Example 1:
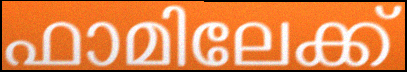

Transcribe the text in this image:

ഫാമിലേക്ക്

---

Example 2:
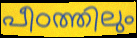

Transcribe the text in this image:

പീഠത്തിലും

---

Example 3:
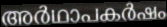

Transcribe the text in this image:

അർഥാപകർഷം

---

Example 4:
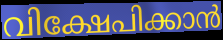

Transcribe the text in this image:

വിക്ഷേപിക്കാൻ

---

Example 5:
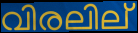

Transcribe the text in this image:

വിരലില്